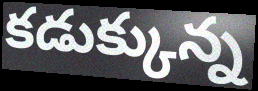
కడుక్కున్న